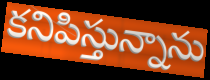
కనిపిస్తున్నాను